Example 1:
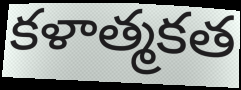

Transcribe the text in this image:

కళాత్మకత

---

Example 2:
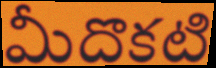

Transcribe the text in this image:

మీదొకటి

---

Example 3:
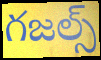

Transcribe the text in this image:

గజల్స్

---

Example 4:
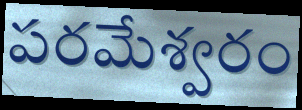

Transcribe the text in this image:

పరమేశ్వరం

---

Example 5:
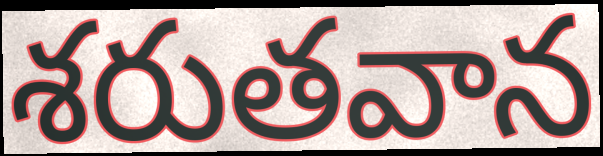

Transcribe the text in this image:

శరుతవాన